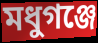
মধুগঞ্জে